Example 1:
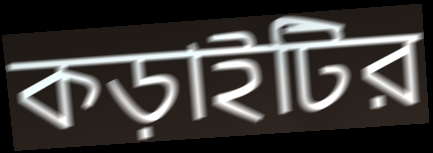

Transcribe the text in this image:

কড়াইটির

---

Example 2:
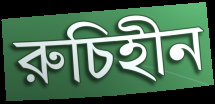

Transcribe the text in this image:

রুচিহীন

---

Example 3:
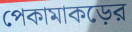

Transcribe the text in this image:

পেকামাকড়ের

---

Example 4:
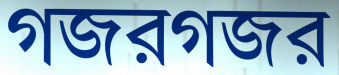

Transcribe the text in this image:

গজরগজর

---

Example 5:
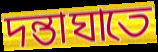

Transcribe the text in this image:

দন্তাঘাতে